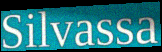
Silvassa